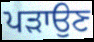
ਪੜਾਉਣ